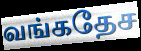
வங்கதேச